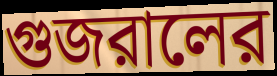
গুজরালের